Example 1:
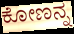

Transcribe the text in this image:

ಕೋಣನ್ನ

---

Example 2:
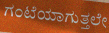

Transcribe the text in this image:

ಗಂಟೆಯಾಗುತ್ತಲೇ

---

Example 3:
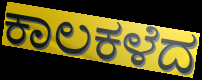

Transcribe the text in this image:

ಕಾಲಕಳೆದ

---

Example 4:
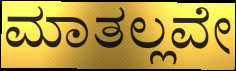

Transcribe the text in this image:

ಮಾತಲ್ಲವೇ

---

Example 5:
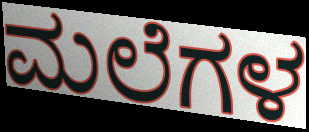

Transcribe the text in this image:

ಮಲೆಗಳ